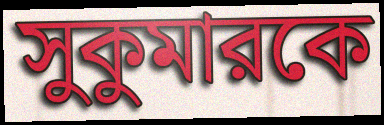
সুকুমারকে